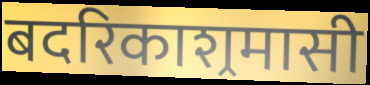
बदरिकाश्रमासी